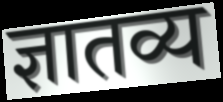
ज्ञातव्य